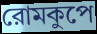
রোমকুপে